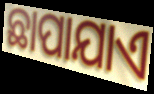
ଛାପାଯାଏ